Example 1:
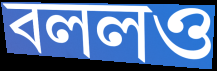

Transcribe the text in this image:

বললও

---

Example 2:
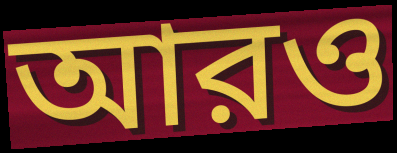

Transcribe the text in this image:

আরও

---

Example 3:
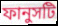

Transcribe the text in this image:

ফানুসটি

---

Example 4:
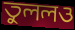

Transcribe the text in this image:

তুললও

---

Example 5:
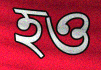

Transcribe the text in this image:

হও